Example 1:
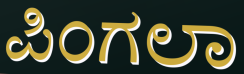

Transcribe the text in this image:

ಪಿಂಗಲಾ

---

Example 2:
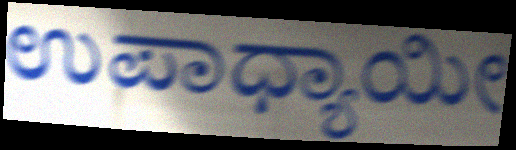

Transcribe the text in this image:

ಉಪಾಧ್ಯಾಯೀ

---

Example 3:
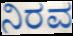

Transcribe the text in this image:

ನಿರವ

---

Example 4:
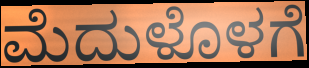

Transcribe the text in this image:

ಮೆದುಳೊಳಗೆ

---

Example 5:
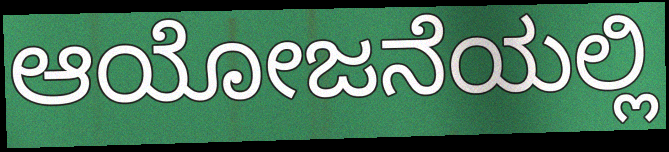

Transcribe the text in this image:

ಆಯೋಜನೆಯಲ್ಲಿ